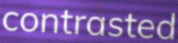
contrasted